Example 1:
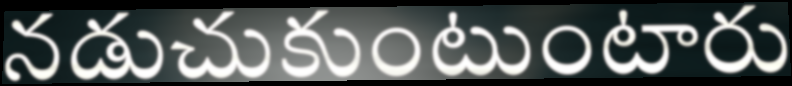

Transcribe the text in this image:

నడుచుకుంటుంటారు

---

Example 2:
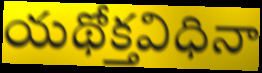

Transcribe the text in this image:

యథోక్తవిధినా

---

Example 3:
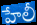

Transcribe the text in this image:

హేలీ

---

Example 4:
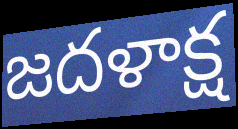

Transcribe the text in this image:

జదళాక్ష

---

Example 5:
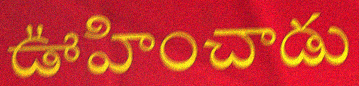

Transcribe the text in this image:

ఊహించాడు